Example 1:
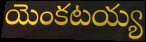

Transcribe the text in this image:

యెంకటయ్య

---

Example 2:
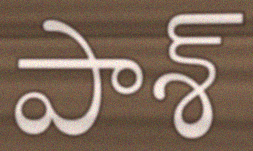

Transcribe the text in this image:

పాశ్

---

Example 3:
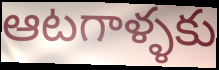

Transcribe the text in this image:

ఆటగాళ్ళకు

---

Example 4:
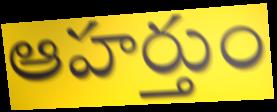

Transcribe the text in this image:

ఆహర్తుం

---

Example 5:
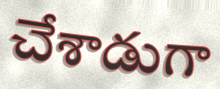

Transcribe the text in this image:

చేశాడుగా